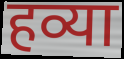
हव्या